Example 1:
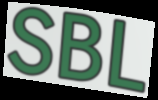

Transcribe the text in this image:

SBL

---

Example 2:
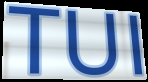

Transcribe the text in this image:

TUI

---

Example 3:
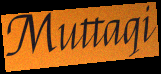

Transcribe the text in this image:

Muttaqi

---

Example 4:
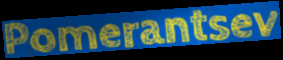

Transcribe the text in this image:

Pomerantsev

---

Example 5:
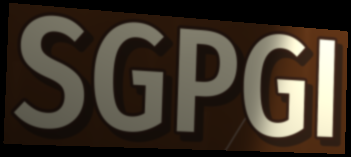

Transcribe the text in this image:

SGPGI